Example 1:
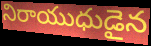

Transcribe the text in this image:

నిరాయుధుడైన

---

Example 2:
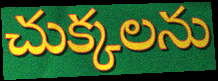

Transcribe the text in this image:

చుక్కలను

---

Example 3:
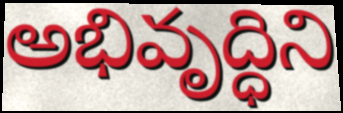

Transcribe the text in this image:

అభివృద్ధిని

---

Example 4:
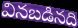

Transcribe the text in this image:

వినబడినది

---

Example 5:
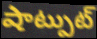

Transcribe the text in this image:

షాట్పుట్